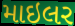
માઇલર